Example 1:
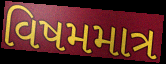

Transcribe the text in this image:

વિષમમાત્ર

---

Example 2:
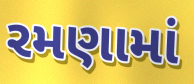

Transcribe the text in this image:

રમણામાં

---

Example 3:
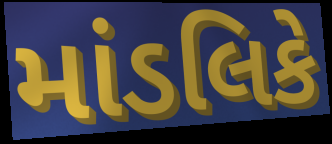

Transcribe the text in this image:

માંડલિકે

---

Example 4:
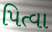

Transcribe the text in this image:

પિત્વા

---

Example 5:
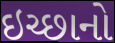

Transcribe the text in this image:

ઇચ્છાનો